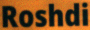
Roshdi